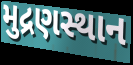
મુદ્રણસ્થાન